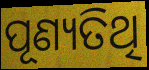
ପୂଣ୍ୟତିଥି